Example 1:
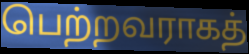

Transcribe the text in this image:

பெற்றவராகத்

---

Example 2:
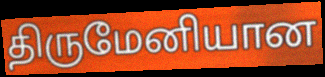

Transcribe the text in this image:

திருமேனியான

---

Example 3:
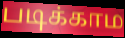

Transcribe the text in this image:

படிக்காம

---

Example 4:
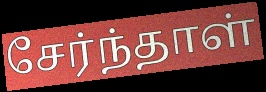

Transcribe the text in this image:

சேர்ந்தாள்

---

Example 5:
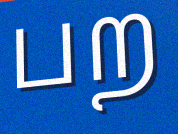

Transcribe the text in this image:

பற